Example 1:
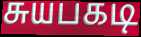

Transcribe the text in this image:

சுயபகடி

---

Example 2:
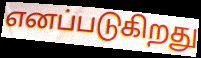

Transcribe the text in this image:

எனப்படுகிறது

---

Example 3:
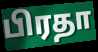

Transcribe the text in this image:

பிரதா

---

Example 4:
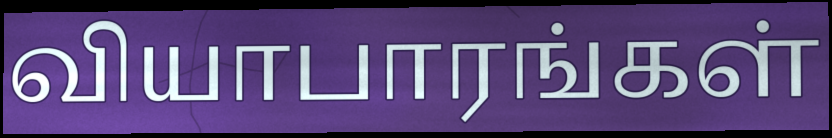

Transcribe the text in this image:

வியாபாரங்கள்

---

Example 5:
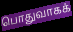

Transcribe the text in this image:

பொதுவாகக்